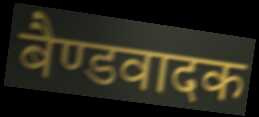
बैण्डवादक